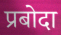
प्रबोदा